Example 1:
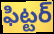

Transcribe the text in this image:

ఫిట్టర్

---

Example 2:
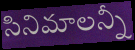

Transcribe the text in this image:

సినిమాలన్నీ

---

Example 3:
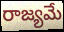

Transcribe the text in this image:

రాజ్యమే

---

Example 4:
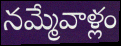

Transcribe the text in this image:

నమ్మేవాళ్లం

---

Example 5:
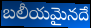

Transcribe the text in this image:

బలీయమైనదే